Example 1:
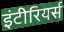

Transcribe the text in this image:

इंटीरियर्स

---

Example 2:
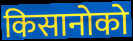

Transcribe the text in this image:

किसानोको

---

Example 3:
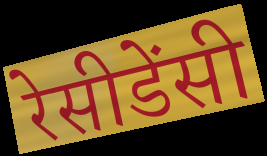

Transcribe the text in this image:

रेसीडेंसी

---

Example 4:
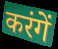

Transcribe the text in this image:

करंगें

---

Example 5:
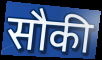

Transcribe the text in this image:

सौकी